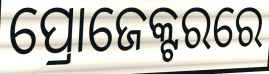
ପ୍ରୋଜେକ୍ଟରରେ